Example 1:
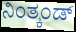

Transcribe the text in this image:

ನಿಂತ್ಕಂಡ್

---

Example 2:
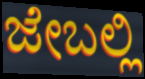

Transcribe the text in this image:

ಜೇಬಲ್ಲಿ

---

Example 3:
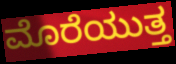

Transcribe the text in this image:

ಮೊರೆಯುತ್ತ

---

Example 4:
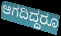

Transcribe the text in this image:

ಆಗದಿದ್ದರೂ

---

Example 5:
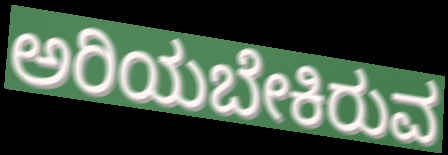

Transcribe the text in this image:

ಅರಿಯಬೇಕಿರುವ